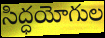
సిద్ధయోగుల